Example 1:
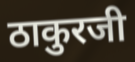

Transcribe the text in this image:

ठाकुरजी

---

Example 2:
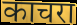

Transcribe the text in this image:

काचरा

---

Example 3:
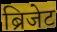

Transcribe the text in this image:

ब्रिजेट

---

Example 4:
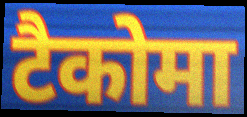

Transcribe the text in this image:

टैकोमा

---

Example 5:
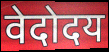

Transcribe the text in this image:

वेदोदय